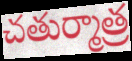
చతుర్మాత్ర